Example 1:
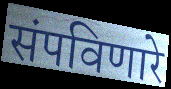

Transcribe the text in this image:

संपविणारे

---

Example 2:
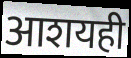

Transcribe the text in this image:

आशयही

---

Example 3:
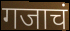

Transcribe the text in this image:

गजाचं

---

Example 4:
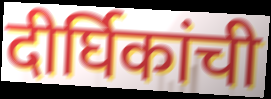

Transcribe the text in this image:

दीर्घिकांची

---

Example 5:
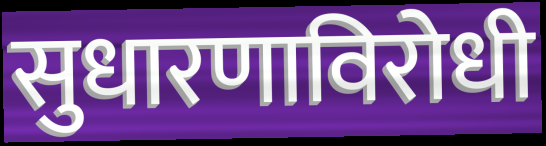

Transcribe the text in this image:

सुधारणाविरोधी